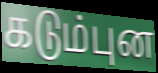
கடும்புன